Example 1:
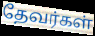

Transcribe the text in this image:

தேவர்கள்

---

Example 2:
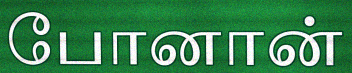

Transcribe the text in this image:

போனான்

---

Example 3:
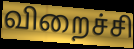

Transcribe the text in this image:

விறைச்சி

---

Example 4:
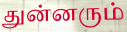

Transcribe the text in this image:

துன்னரும்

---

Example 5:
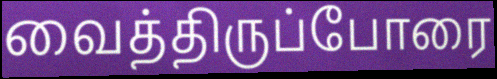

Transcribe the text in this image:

வைத்திருப்போரை